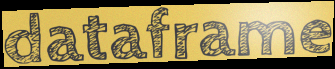
dataframe